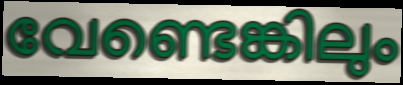
വേണ്ടെങ്കിലും